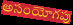
అసంయోగపు